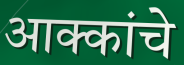
आक्कांचे